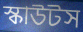
স্কাউটস